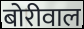
बोरीवाल